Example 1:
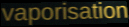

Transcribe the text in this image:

vaporisation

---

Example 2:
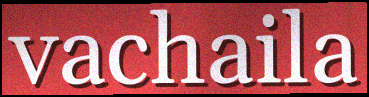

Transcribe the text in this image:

vachaila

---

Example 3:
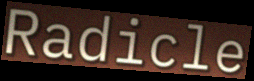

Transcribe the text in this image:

Radicle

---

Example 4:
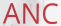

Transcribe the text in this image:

ANC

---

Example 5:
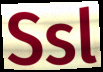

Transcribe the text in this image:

Ssl